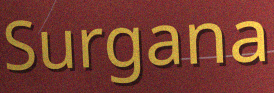
Surgana